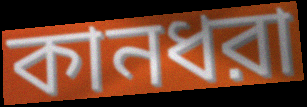
কানধরা